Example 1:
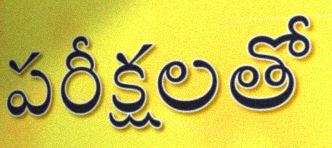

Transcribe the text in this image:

పరీక్షలతో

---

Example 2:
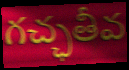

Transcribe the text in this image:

గచ్ఛతీవ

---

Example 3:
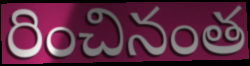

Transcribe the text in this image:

రించినంత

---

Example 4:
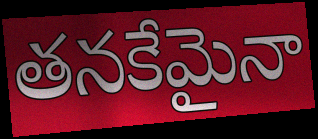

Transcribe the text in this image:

తనకేమైనా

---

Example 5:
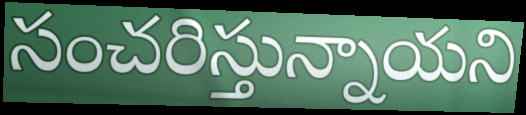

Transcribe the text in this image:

సంచరిస్తున్నాయని